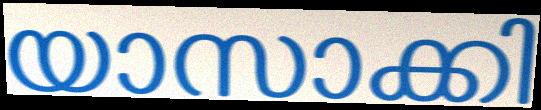
യാസാക്കി